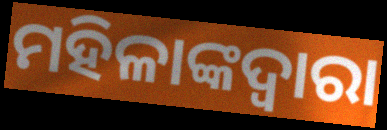
ମହିଳାଙ୍କଦ୍ୱାରା